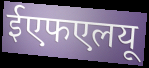
ईएफएलयू